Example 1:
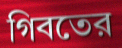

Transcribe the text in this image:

গিবতের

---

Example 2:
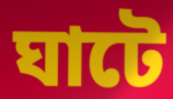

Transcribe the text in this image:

ঘাটে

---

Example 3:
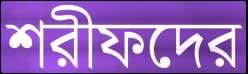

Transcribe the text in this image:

শরীফদের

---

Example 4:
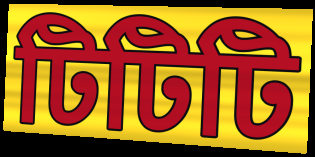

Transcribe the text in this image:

টিটিটি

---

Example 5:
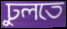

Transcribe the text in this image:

ঢুলতে